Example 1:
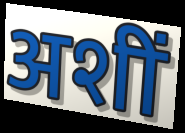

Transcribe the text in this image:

अशीं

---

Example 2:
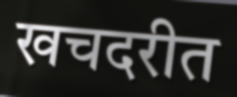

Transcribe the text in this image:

खचदरीत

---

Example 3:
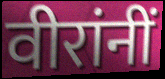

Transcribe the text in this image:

वीरांनीं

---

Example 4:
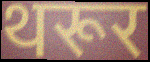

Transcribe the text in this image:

थरूर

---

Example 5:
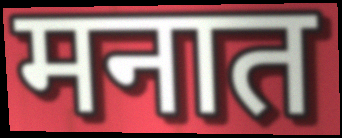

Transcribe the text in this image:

मनात